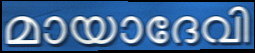
മായാദേവി